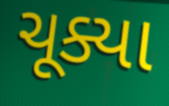
ચૂક્યા